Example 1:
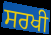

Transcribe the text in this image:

ਸਰਖੀ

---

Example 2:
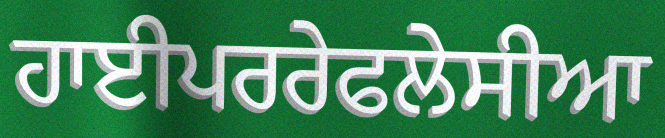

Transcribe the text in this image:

ਹਾਈਪਰਰੇਫਲੇਸੀਆ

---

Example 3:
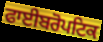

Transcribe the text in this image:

ਫਾਈਬਰੋਪਟਿਕ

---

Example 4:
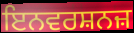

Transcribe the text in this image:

ਇਨਵਰਸ਼ਨਜ਼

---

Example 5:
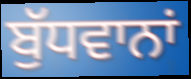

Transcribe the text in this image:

ਬੁੱਧਵਾਨਾਂ